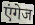
एंगेज